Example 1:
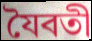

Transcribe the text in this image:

যৈবতী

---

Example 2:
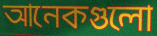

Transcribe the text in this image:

আনেকগুলো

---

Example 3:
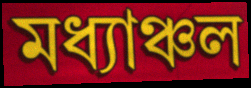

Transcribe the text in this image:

মধ্যাঞ্চল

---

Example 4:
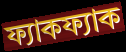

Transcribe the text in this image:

ফ্যাকফ্যাক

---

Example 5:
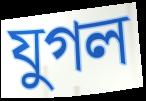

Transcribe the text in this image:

যুগল